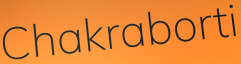
Chakraborti